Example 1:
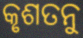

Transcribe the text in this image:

କୃଶତନୁ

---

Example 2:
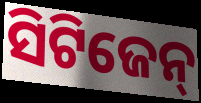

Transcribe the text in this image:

ସିଟିଜେନ୍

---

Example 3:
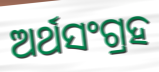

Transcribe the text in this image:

ଅର୍ଥସଂଗ୍ରହ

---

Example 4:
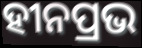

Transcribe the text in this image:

ହୀନପ୍ରଭ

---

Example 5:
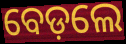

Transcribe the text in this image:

ବେଡ଼ଲେ